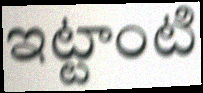
ఇట్టాంటి